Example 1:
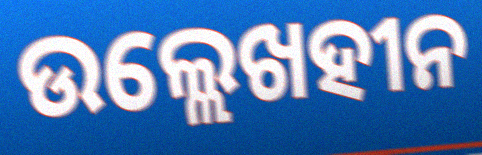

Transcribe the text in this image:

ଉଲ୍ଲେଖହୀନ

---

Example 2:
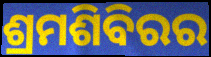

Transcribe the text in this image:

ଶ୍ରମଶିବିରର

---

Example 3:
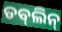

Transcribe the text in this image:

ଡବ୍‌ଲିନ୍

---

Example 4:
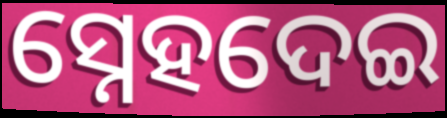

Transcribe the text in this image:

ସ୍ନେହଦେଇ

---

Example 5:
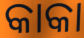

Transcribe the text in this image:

କାକା